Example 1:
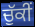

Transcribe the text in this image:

ਚੁੱਕੀਂ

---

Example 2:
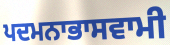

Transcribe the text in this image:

ਪਦਮਨਾਭਾਸਵਾਮੀ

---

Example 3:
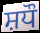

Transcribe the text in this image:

ਸ਼ਧੌ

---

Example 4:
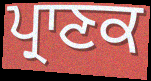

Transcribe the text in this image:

ਪ੍ਰਾਣਕ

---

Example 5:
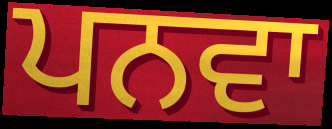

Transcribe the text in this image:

ਪਨਵਾ